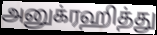
அனுக்ரஹித்து